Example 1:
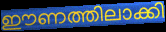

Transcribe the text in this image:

ഈണത്തിലാക്കി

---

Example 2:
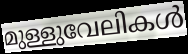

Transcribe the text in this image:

മുള്ളുവേലികൾ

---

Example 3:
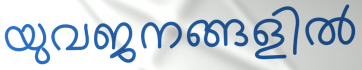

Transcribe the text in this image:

യുവജനങ്ങളിൽ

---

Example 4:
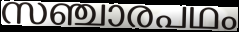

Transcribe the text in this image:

സഞ്ചാരപഥം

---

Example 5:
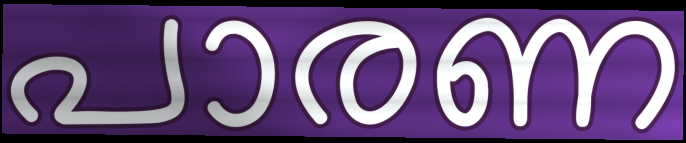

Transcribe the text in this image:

പാരണ